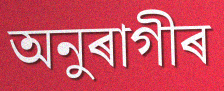
অনুৰাগীৰ